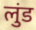
लुंड